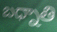
బధ్నాతి